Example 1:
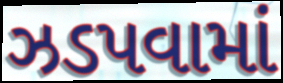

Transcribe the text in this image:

ઝડપવામાં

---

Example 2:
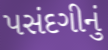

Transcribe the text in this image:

પસંદગીનું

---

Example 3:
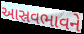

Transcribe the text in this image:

આસ્રવભાવને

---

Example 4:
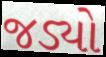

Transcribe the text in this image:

જડ્યો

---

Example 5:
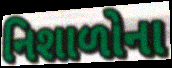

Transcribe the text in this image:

નિશાળોના